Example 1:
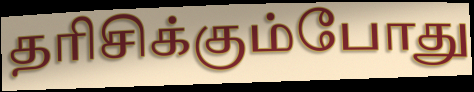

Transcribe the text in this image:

தரிசிக்கும்போது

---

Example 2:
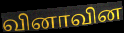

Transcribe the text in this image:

வினாவின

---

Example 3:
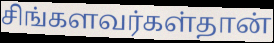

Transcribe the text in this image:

சிங்களவர்கள்தான்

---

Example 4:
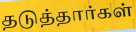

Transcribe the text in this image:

தடுத்தார்கள்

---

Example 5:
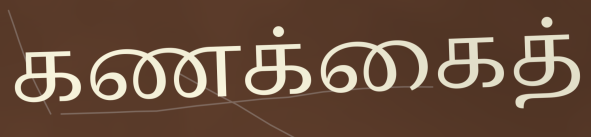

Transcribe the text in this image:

கணக்கைத்